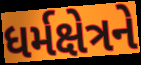
ધર્મક્ષેત્રને